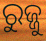
ରୁଜ୍ଜୁ